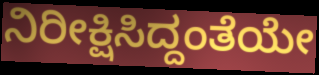
ನಿರೀಕ್ಷಿಸಿದ್ದಂತೆಯೇ